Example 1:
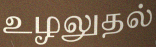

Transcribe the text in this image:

உழலுதல்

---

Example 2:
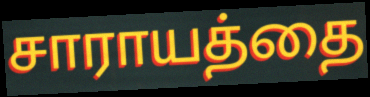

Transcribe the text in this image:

சாராயத்தை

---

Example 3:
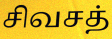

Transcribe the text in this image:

சிவசத்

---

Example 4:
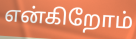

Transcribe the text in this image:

என்கிறோம்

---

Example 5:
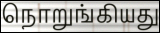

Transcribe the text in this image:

நொறுங்கியது